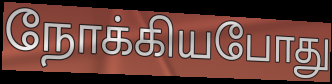
நோக்கியபோது